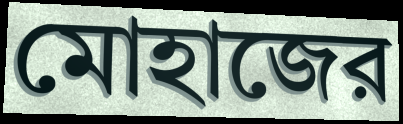
মোহাজের